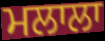
ਮਲਾਲਾ